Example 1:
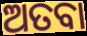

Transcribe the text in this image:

ଅତବା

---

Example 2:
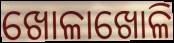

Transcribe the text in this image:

ଖୋଳାଖୋଳି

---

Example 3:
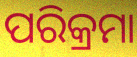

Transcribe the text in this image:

ପରିକ୍ରମା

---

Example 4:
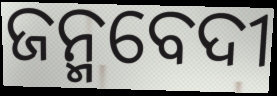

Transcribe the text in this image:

ଜନ୍ମବେଦୀ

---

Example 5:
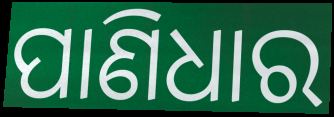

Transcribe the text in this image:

ପାଣିଧାର